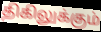
திகிலுக்கும்